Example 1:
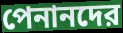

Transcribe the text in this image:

পেনানদের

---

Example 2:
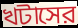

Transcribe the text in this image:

খটাসের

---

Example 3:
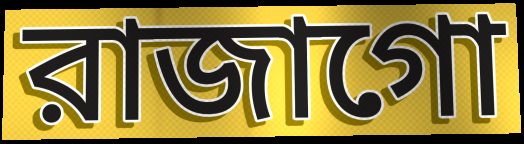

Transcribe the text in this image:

রাজাগো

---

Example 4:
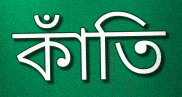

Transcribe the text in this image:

কাঁতি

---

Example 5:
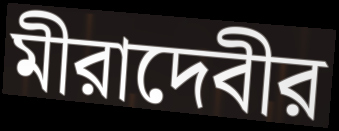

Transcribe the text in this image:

মীরাদেবীর